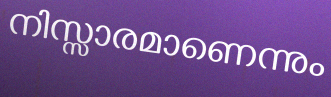
നിസ്സാരമാണെന്നും